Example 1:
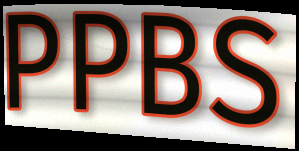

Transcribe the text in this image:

PPBS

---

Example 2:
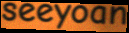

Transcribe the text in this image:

seeyoan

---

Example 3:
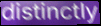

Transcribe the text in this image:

distinctly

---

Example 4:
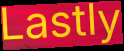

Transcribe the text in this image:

Lastly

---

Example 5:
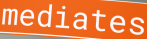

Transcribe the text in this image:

mediates